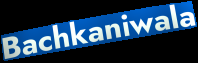
Bachkaniwala